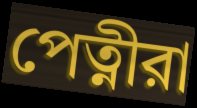
পেত্নীরা